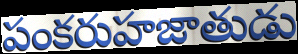
పంకరుహజాతుడు